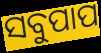
ସବୁପାପ